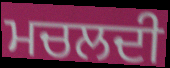
ਮਚਲਦੀ